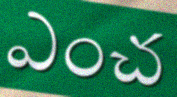
ఎంచ